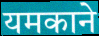
यमकाने